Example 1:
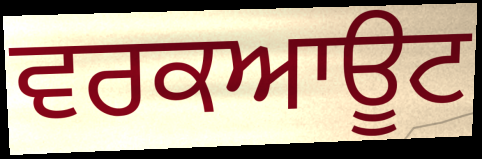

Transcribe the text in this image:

ਵਰਕਆਊਟ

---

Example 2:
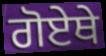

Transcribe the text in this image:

ਗੋਏਥੇ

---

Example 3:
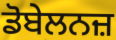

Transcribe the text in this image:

ਡੋਬੇਲਨਜ਼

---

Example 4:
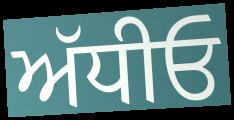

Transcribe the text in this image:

ਅੱਧੀਓ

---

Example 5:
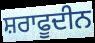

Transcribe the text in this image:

ਸ਼ਰਾਫੂਦੀਨ